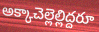
అక్కాచెల్లెల్లిద్దరూ